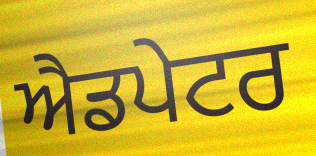
ਐਡਪੇਟਰ